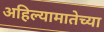
अहिल्यामातेच्या